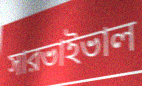
সারভাইভাল